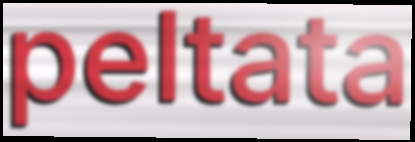
peltata